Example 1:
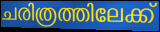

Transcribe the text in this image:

ചരിത്രത്തിലേക്ക്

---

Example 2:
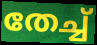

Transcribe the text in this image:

തേച്ച്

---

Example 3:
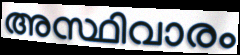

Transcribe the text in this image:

അസ്ഥിവാരം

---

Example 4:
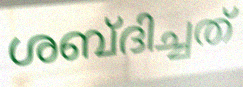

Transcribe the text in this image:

ശബ്ദിച്ചത്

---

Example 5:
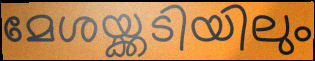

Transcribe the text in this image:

മേശയ്ക്കടിയിലും